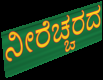
ನೀರೆಚ್ಚರದ